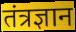
तंत्रज्ञान